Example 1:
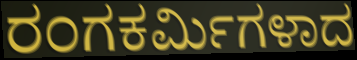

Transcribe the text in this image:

ರಂಗಕರ್ಮಿಗಳಾದ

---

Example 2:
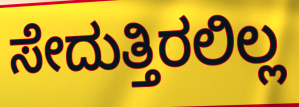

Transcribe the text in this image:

ಸೇದುತ್ತಿರಲಿಲ್ಲ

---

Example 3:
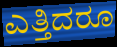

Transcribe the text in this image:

ಎತ್ತಿದರೂ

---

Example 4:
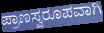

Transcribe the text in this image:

ಪ್ರಾಣಸ್ವರೂಪವಾಗಿ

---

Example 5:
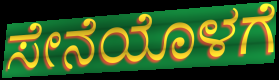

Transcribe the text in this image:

ಸೇನೆಯೊಳಗೆ